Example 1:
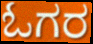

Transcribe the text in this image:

ಓಗರ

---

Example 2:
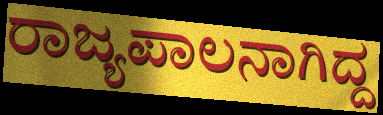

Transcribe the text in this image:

ರಾಜ್ಯಪಾಲನಾಗಿದ್ದ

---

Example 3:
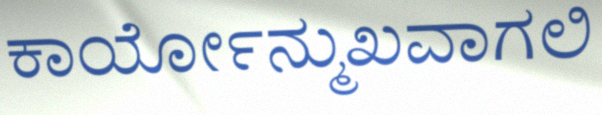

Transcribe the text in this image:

ಕಾರ್ಯೋನ್ಮುಖವಾಗಲಿ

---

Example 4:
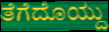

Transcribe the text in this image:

ತೆಗೆದೊಯ್ದು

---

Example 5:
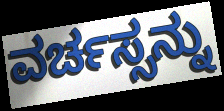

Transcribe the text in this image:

ವರ್ಚಸ್ಸನ್ನು